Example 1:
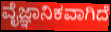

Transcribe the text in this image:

ವೈಜ್ಞಾನಿಕವಾಗಿದೆ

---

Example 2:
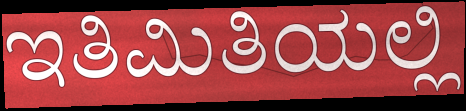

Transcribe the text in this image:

ಇತಿಮಿತಿಯಲ್ಲಿ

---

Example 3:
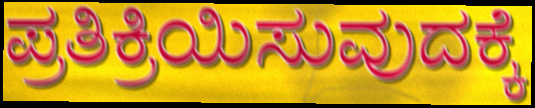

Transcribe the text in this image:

ಪ್ರತಿಕ್ರಿಯಿಸುವುದಕ್ಕೆ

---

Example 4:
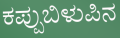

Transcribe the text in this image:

ಕಪ್ಪುಬಿಳುಪಿನ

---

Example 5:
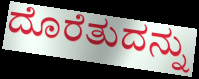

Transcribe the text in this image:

ದೊರೆತುದನ್ನು